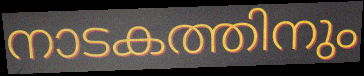
നാടകത്തിനും